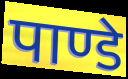
पाण्डे